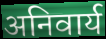
अनिवार्य